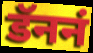
डॅननं